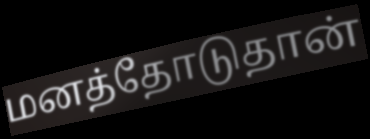
மனத்தோடுதான்